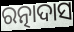
ରତ୍ନାଦାସ